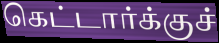
கெட்டார்க்குச்